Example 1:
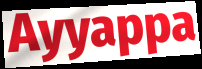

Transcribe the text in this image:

Ayyappa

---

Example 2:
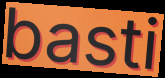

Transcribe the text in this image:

basti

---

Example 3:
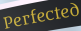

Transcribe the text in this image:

Perfected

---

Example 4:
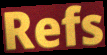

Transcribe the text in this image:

Refs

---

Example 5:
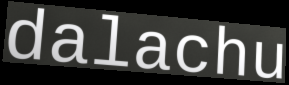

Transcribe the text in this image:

dalachu